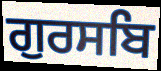
ਗੁਰਸਬਿ